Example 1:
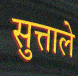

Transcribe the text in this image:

सुत्ताले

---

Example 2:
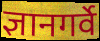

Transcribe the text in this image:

ज्ञानगर्वे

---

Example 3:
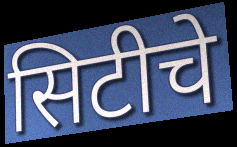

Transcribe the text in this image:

सिटीचे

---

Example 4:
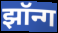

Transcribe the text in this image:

झॉन्ग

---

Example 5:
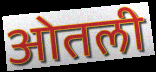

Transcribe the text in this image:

ओतली